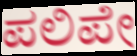
ಪಲಿಪೇ